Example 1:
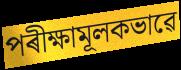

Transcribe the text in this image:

পৰীক্ষামূলকভাৱে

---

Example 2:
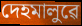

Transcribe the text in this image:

দেহমালুৱে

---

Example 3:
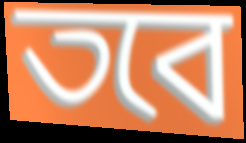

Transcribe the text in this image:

তবে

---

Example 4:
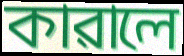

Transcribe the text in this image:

কাৱালে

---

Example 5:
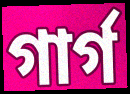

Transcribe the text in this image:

গাৰ্গ